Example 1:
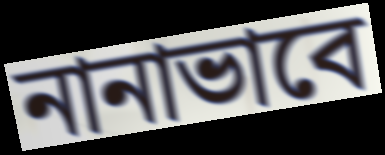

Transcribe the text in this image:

নানাভাবে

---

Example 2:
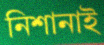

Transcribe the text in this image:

নিশানাই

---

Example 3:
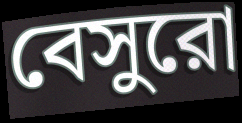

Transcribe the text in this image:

বেসুরো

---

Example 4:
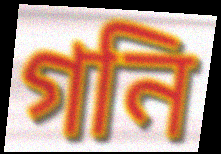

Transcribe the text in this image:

গনি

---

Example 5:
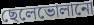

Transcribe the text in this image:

ছেলেভোলানো